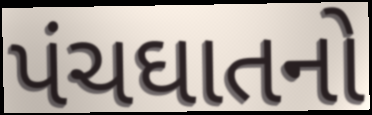
પંચઘાતનો